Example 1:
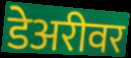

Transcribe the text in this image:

डेअरीवर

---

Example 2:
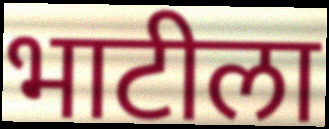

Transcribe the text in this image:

भाटीला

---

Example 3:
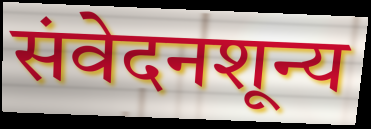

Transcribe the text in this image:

संवेदनशून्य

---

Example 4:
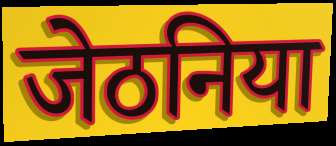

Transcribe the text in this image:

जेठनिया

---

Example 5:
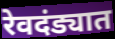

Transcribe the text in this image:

रेवदंड्यात